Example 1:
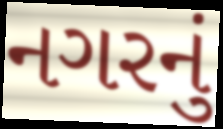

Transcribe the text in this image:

નગરનું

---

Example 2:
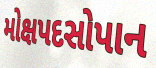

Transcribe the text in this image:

મોક્ષપદસોપાન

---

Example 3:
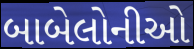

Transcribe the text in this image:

બાબેલોનીઓ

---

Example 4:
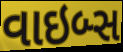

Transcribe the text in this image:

વાઇબ્સ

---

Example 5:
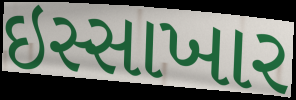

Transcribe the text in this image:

ઇસ્સાખાર